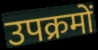
उपक्रमों